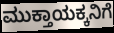
ಮುಕ್ತಾಯಕ್ಕನಿಗೆ